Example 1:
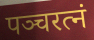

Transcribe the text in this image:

पञ्चरत्नं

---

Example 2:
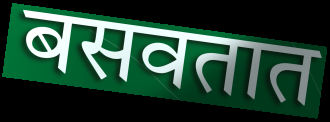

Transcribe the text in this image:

बसवतात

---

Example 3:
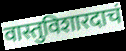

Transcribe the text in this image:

वास्तुविशारदाचं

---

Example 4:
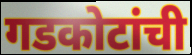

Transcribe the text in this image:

गडकोटांची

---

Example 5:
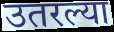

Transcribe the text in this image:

उतरल्या